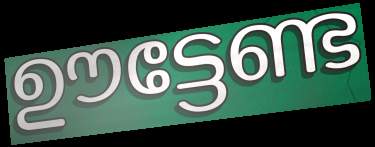
ഊട്ടേണ്ട